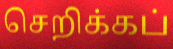
செறிக்கப்